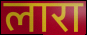
लारा